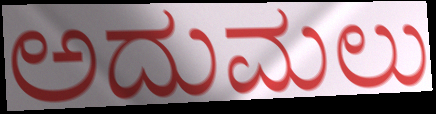
ಅದುಮಲು